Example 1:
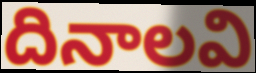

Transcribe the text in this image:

దినాలవి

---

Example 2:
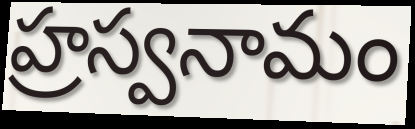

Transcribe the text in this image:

హ్రస్వనామం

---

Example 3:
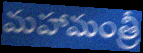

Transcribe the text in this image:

మహామంత్రీ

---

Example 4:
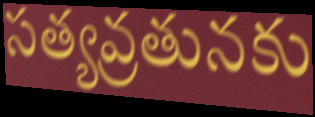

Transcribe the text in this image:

సత్యవ్రతునకు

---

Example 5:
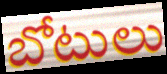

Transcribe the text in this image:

బోటులు